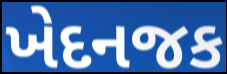
ખેદનજક